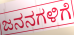
ಜನನಗಳಿಗೆ